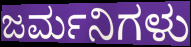
ಜರ್ಮನಿಗಳು